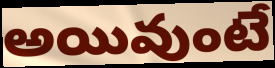
అయివుంటే